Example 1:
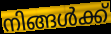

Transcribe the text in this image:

നിങ്ങൾക്ക്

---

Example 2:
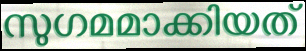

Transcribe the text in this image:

സുഗമമാക്കിയത്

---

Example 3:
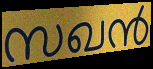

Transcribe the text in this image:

സഖൻ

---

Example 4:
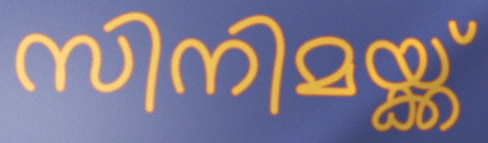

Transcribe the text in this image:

സിനിമയ്ക്ക്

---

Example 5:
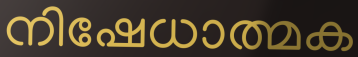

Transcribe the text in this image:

നിഷേധാത്മക